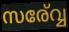
സര്വ്വേ